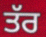
ਤੱਰ